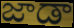
జాడా